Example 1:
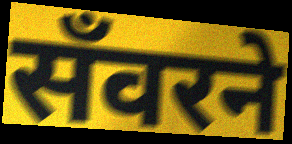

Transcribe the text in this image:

सँवरने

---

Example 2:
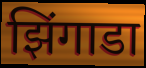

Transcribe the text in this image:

झिंगाडा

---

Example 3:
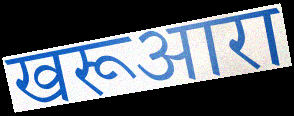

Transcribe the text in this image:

खरूआरा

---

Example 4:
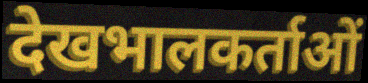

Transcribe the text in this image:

देखभालकर्ताओं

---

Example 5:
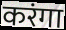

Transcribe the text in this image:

करंगा